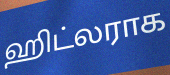
ஹிட்லராக